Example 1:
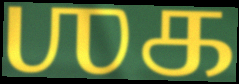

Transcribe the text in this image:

ஶக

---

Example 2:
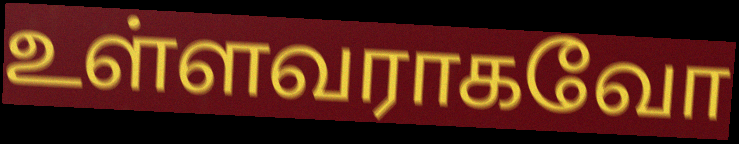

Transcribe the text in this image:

உள்ளவராகவோ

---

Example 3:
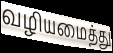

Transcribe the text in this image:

வழியமைத்து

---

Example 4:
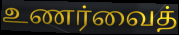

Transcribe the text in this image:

உணர்வைத்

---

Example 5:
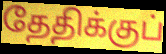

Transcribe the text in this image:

தேதிக்குப்